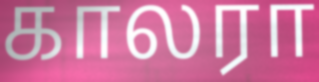
காலரா